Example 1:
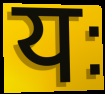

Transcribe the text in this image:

यः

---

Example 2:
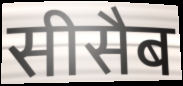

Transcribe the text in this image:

सीसैब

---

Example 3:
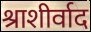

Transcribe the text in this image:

श्राशीर्वाद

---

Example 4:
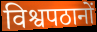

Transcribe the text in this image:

विश्वपठानों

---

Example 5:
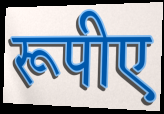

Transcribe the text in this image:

रूपीए